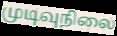
முடிவுநிலை